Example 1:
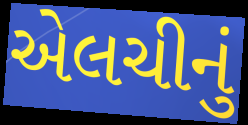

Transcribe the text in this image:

એલચીનું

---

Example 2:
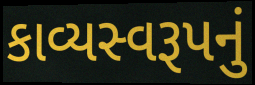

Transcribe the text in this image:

કાવ્યસ્વરૂપનું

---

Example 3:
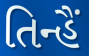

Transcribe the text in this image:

તિન્હૈં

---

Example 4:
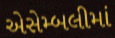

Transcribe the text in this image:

એસેમ્બલીમાં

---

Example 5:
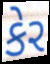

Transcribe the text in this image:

કેર